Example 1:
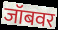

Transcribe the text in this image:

जॉबवर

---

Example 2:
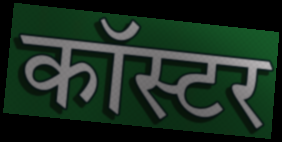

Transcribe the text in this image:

कॉस्टर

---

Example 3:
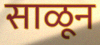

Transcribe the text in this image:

साळून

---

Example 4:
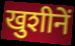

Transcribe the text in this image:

खुशीनें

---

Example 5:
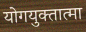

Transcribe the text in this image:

योगयुक्तात्मा